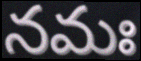
నమః